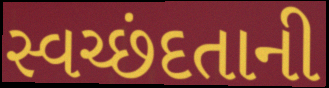
સ્વચ્છંદતાની